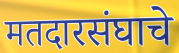
मतदारसंघाचे